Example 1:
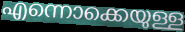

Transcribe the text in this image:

എന്നൊക്കെയുള്ള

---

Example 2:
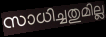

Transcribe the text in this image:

സാധിച്ചതുമില്ല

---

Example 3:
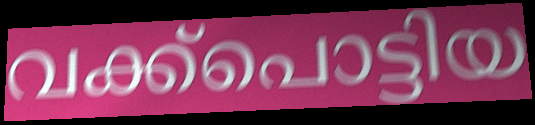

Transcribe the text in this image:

വക്ക്പൊട്ടിയ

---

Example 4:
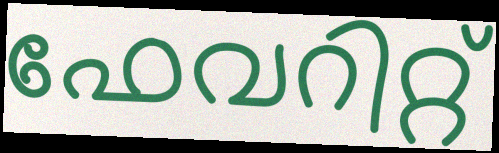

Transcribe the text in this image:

ഫേവറിറ്റ്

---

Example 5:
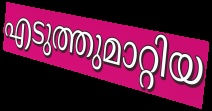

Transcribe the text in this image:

എടുത്തുമാറ്റിയ